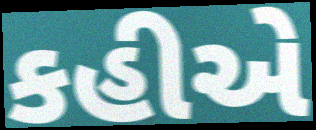
કહીએ